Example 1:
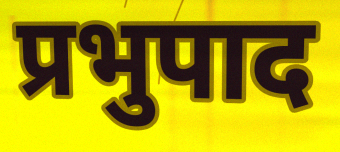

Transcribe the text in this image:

प्रभुपाद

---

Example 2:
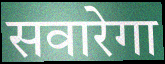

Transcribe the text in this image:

सवारेगा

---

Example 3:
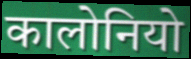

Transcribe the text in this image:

कालोनियो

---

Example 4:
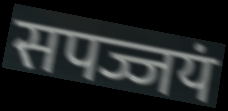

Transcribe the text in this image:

सपज्जयं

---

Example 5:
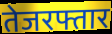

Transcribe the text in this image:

तेजरफ्तार